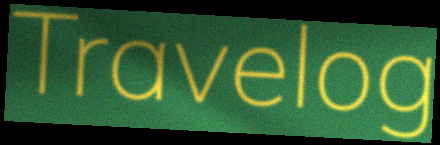
Travelog